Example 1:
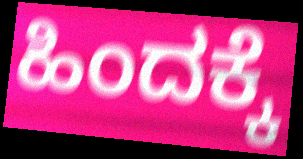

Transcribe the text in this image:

ಹಿಂದಕ್ಕೆ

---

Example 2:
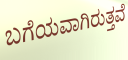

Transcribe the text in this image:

ಬಗೆಯವಾಗಿರುತ್ತವೆ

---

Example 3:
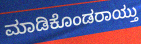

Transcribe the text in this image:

ಮಾಡಿಕೊಂಡರಾಯ್ತು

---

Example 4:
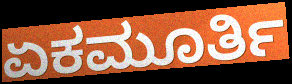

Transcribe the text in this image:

ಏಕಮೂರ್ತಿ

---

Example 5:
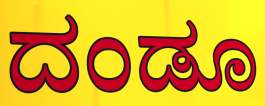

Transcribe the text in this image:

ದಂಡೂ